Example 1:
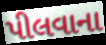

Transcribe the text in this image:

પીલવાના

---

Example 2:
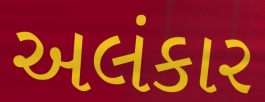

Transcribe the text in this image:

અલંકાર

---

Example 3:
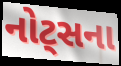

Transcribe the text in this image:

નોટ્સના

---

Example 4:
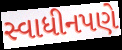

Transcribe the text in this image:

સ્વાધીનપણે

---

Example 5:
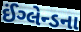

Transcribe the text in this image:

ઈંગ્લેન્ડના